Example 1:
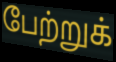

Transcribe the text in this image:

பேற்றுக்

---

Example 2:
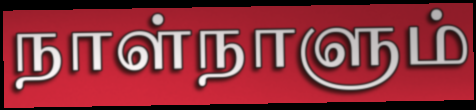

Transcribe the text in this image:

நாள்நாளும்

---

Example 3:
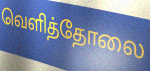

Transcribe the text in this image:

வெளித்தோலை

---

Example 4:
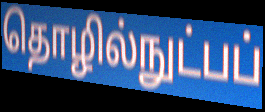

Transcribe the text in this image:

தொழில்நுட்பப்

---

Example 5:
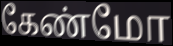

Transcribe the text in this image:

கேண்மோ